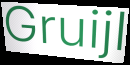
Gruijl